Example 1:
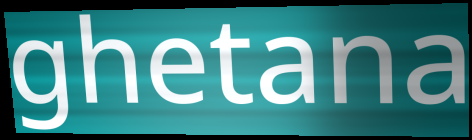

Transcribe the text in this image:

ghetana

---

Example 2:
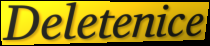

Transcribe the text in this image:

Deletenice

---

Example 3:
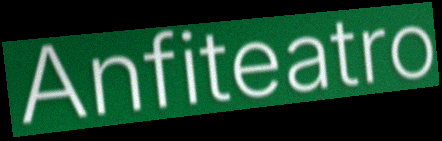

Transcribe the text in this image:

Anfiteatro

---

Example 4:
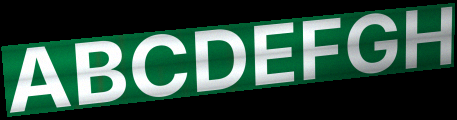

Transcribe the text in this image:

ABCDEFGH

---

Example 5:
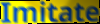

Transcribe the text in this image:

Imitate